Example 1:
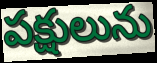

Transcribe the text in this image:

పక్షులును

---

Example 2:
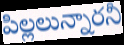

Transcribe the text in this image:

పిల్లలున్నారనీ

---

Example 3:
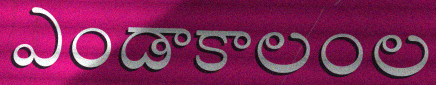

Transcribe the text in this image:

ఎండాకాలంల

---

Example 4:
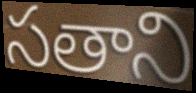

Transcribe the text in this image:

సతాని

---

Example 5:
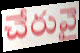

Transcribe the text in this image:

చేరువై